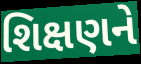
શિક્ષણને